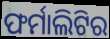
ଫର୍ମାଲିଟିର